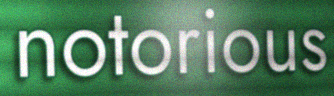
notorious